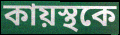
কায়স্থকে